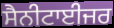
ਸੈਨੀਟਾਈਜਰ